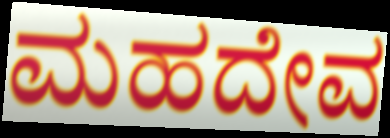
ಮಹದೇವ